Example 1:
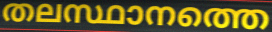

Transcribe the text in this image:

തലസ്ഥാനത്തെ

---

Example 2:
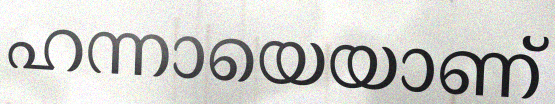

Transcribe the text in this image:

ഹന്നായെയാണ്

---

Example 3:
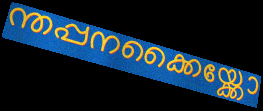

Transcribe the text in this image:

ന്തപ്പനക്കൈയ്ക്കോ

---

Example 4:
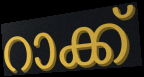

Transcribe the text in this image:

റാക്ക്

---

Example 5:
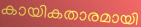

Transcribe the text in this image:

കായികതാരമായി